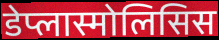
डेप्लास्मोलिसिस